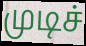
முடிச்